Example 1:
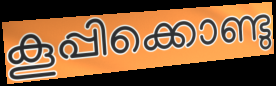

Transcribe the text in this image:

കൂപ്പിക്കൊണ്ടു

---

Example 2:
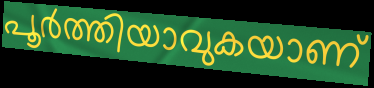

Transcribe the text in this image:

പൂർത്തിയാവുകയാണ്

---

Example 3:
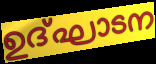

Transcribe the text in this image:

ഉദ്ഘാടന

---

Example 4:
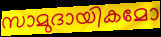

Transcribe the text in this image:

സാമുദായികമോ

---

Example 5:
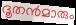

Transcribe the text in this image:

ദൂതൻമാരും